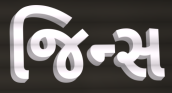
જિન્સ